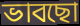
ভাবছো